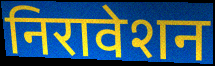
निरावेशन